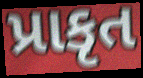
પ્રાકૃત